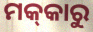
ମକ୍‌କାରୁ